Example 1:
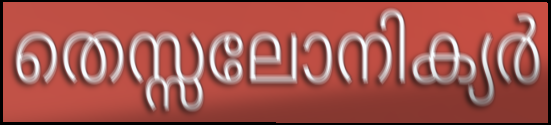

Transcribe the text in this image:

തെസ്സലോനിക്യർ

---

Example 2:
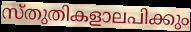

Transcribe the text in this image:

സ്തുതികളാലപിക്കും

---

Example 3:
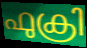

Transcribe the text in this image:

ഫുക്രി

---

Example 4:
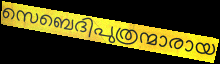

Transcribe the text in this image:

സെബെദിപുത്രന്മാരായ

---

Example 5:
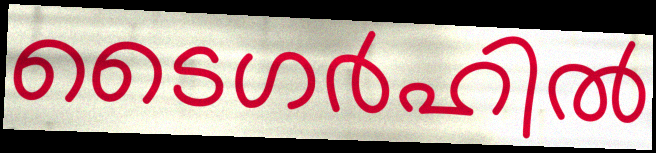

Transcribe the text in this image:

ടൈഗർഹിൽ